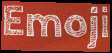
Emoji